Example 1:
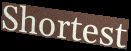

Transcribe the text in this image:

Shortest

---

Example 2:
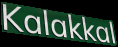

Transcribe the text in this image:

Kalakkal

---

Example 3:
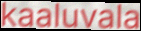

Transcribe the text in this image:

kaaluvala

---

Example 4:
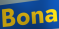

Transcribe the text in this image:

Bona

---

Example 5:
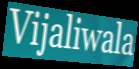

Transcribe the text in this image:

Vijaliwala